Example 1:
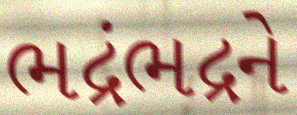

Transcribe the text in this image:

ભદ્રંભદ્રને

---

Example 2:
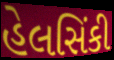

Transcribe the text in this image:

હેલસિંકી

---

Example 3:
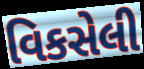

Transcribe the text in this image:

વિકસેલી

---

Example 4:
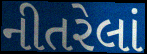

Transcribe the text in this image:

નીતરેલાં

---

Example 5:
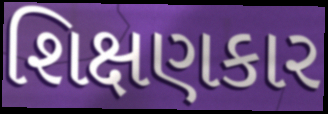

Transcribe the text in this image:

શિક્ષણકાર